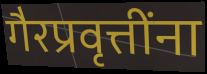
गैरप्रवृत्तींना